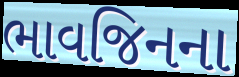
ભાવજિનના